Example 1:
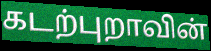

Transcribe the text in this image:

கடற்புறாவின்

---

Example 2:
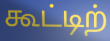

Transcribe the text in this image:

கூட்டிற்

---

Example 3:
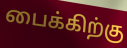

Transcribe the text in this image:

பைக்கிற்கு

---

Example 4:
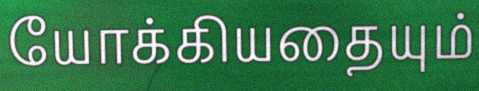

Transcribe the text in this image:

யோக்கியதையும்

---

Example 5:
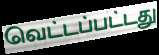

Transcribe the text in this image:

வெட்டப்பட்டது